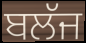
ਬਲੱਜ